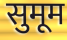
सुमूम